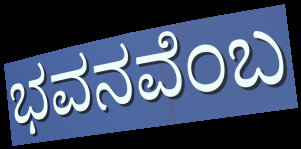
ಭವನವೆಂಬ